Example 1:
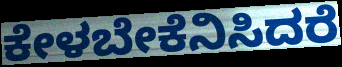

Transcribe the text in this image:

ಕೇಳಬೇಕೆನಿಸಿದರೆ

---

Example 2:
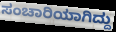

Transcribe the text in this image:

ಸಂಚಾರಿಯಾಗಿದ್ದು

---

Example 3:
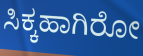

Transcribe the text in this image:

ಸಿಕ್ಕಹಾಗಿರೋ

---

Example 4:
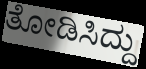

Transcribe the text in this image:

ತೋಡಿಸಿದ್ದು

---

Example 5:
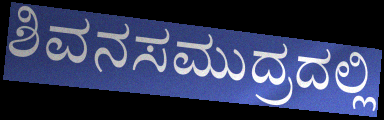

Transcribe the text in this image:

ಶಿವನಸಮುದ್ರದಲ್ಲಿ